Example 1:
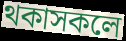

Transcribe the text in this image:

থকাসকলে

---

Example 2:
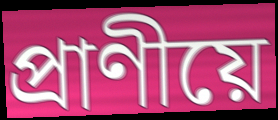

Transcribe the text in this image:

প্ৰাণীয়ে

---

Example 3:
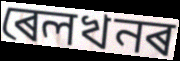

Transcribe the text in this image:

ৰেলখনৰ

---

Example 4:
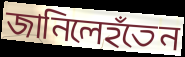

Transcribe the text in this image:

জানিলেহঁতেন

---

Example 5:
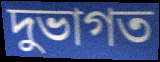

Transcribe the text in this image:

দুভাগত